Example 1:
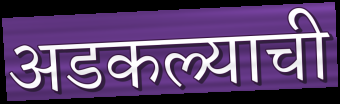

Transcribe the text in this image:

अडकल्याची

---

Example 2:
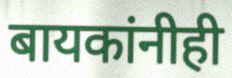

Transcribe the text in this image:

बायकांनीही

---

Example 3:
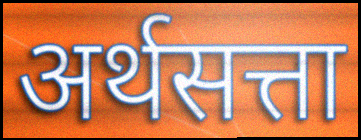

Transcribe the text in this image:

अर्थसत्ता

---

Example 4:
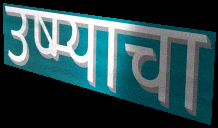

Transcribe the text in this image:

उष्म्याचा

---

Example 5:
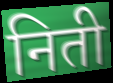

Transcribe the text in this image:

निती